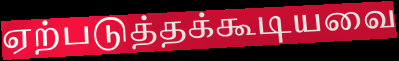
ஏற்படுத்தக்கூடியவை